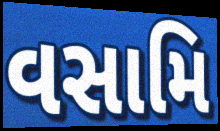
વસામિ